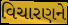
વિચારણને